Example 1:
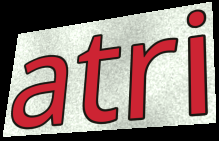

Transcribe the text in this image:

atri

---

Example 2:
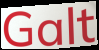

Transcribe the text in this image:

Galt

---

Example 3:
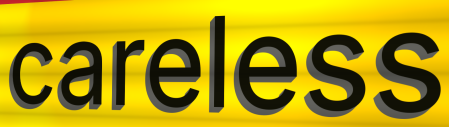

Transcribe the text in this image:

careless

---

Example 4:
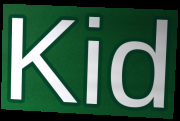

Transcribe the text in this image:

Kid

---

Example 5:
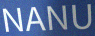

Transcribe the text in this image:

NANU